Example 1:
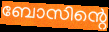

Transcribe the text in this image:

ബോസിന്റെ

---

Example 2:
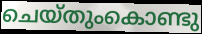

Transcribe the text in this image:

ചെയ്തുംകൊണ്ടു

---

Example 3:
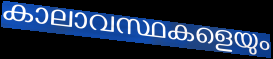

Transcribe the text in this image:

കാലാവസ്ഥകളെയും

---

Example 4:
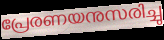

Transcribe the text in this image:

പ്രേരണയനുസരിച്ചു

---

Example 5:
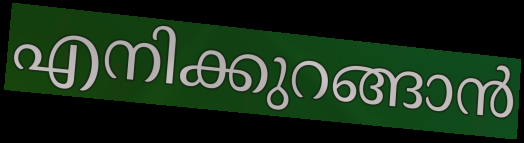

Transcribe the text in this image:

എനിക്കുറങ്ങാൻ